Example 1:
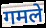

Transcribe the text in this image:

गमले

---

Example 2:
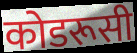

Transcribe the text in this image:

कोडरूसी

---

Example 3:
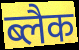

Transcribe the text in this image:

ब्‍लैक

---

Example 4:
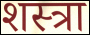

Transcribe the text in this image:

शस्त्रा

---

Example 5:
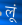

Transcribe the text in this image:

लूं